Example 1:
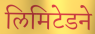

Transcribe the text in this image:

लिमिटेडने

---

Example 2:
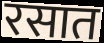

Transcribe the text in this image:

रसात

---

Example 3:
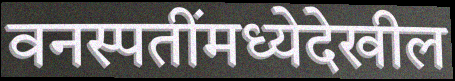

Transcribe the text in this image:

वनस्पतींमध्येदेखील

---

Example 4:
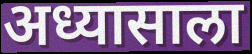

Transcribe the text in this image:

अध्यासाला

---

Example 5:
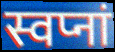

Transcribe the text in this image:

स्वप्नां